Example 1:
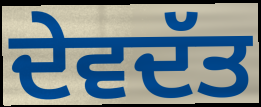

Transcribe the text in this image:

ਦੇਵਦੱਤ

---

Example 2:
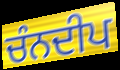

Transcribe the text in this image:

ਚੰਨਦੀਪ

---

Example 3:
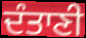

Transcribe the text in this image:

ਦੰਤਾਣੀ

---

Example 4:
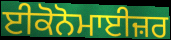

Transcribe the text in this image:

ਈਕੋਨੋਮਾਈਜ਼ਰ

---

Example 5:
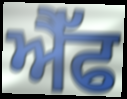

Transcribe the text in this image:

ਐੈੱਫ